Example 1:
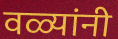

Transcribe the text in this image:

वळ्यांनी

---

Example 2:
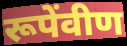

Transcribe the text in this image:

रूपेंवीण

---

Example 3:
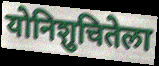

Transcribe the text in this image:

योनिशुचितेला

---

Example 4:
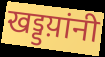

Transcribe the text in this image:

खड्डय़ांनी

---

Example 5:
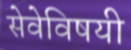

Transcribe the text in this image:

सेवेविषयी